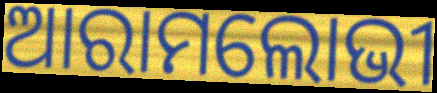
ଆରାମଲୋଭୀ